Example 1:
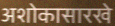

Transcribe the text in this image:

अशोकासारखे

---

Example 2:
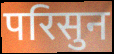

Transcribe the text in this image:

परिसुन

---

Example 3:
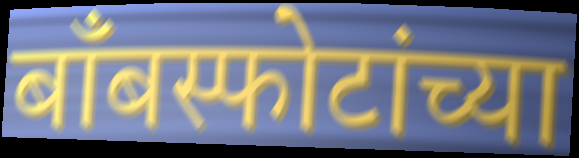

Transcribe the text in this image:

बॉंबस्फोटांच्या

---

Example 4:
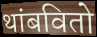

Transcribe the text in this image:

थांबवितो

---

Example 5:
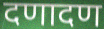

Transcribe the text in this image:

दणादण